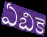
ఏబికె